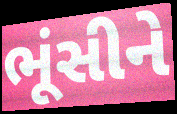
ભૂંસીને